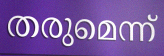
തരുമെന്ന്